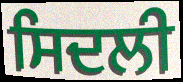
ਸਿਦਲੀ